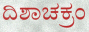
ದಿಶಾಚಕ್ರಂ